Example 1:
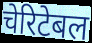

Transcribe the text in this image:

चेरिटेबल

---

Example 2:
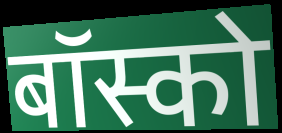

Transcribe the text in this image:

बॉस्को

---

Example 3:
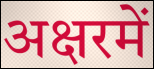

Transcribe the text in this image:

अक्षरमें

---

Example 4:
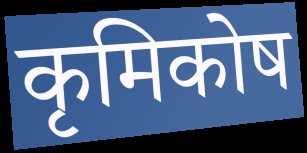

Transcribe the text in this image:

कृमिकोष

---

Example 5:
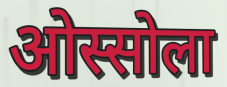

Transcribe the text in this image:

ओस्सोला